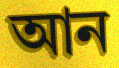
আন